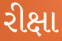
રીક્ષા